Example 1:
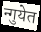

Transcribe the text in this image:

न्गुयेत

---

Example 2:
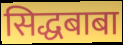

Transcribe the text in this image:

सिद्धबाबा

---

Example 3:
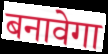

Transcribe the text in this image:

बनावेगा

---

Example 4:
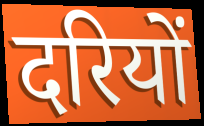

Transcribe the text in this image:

दरियों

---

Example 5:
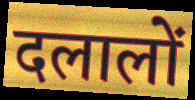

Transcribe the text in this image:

दलालों